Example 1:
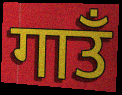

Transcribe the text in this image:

गाउँ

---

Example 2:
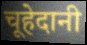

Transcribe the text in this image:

चूहेदानी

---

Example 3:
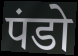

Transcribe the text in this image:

पंडो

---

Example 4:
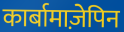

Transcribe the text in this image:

कार्बामाज़ेपिन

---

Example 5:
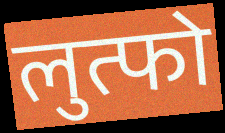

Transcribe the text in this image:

लुत्फो